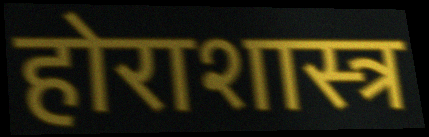
होराशास्त्र